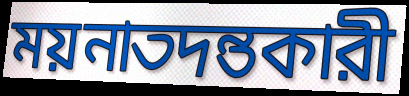
ময়নাতদন্তকারী